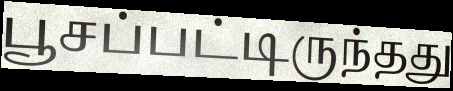
பூசப்பட்டிருந்தது